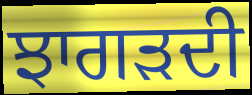
ਝਾਗੜਦੀ